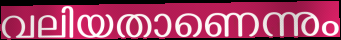
വലിയതാണെന്നും